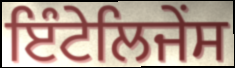
ਇੰਟੇਲਿਜੇਂਸ